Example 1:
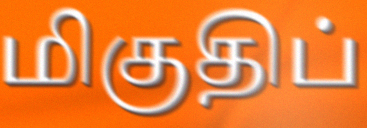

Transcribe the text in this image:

மிகுதிப்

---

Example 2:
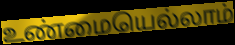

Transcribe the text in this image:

உண்மையெல்லாம்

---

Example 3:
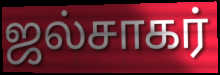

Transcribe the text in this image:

ஜல்சாகர்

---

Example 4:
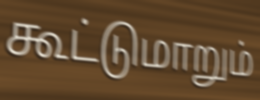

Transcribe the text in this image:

கூட்டுமாறும்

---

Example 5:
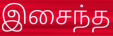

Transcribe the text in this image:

இசைந்த